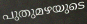
പുതുമഴയുടെ